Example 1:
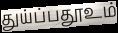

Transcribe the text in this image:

துய்ப்பதூஉம்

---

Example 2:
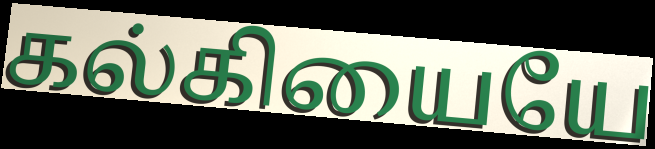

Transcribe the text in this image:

கல்கியையே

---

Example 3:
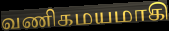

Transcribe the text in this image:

வணிகமயமாகி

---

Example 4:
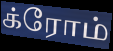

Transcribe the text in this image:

க்ரோம்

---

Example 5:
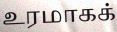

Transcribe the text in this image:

உரமாகக்